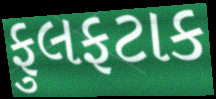
ફુલફટાક